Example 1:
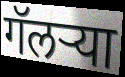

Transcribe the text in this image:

गॅलऱ्या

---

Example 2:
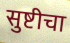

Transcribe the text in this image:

सुष्टीचा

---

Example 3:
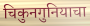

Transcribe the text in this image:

चिकुनगुनियाचा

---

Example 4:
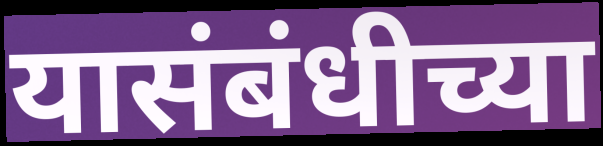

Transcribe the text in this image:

यासंबंधीच्या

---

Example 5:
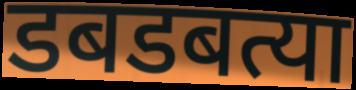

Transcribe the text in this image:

डबडबत्या